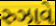
રુઝાવે